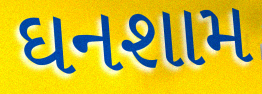
ઘનશામ